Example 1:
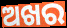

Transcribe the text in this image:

ଅଖର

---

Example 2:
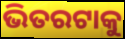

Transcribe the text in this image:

ଭିତରଟାକୁ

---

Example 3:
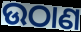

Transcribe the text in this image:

ଉଠାଣ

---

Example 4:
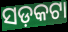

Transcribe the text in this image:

ସଡ଼କଟା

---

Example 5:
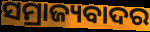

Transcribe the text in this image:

ସମ୍ରାଜ୍ୟବାଦର